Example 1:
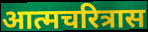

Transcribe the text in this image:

आत्मचरित्रास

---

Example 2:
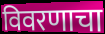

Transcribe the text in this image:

विवरणाचा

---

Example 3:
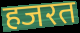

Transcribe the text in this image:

हजरत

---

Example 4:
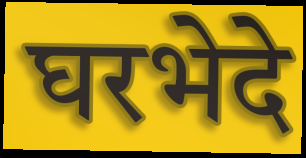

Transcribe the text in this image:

घरभेदे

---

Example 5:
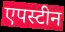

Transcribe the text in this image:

एपस्टीन